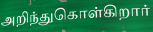
அறிந்துகொள்கிறார்